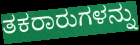
ತಕರಾರುಗಳನ್ನು